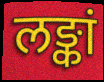
लङ्कां